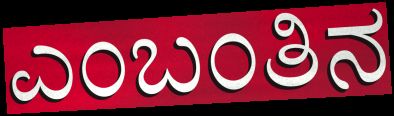
ಎಂಬಂತಿನ